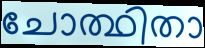
ചോത്ഥിതാ